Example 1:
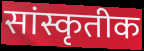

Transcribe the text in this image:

सांस्कृतीक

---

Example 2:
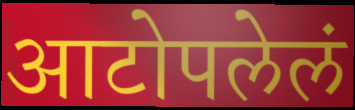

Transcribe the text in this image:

आटोपलेलं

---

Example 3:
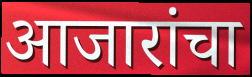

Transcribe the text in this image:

आजारांचा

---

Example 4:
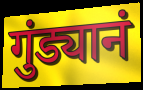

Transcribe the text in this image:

गुंड्यानं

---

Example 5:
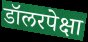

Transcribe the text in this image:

डॉलरपेक्षा